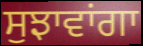
ਸੁਝਾਵਾਂਗਾ